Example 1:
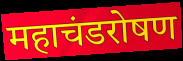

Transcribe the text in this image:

महाचंडरोषण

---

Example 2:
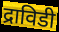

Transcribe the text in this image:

द्राविडी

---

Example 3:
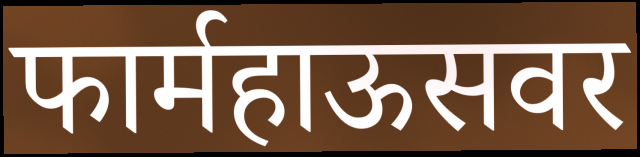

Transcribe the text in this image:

फार्महाऊसवर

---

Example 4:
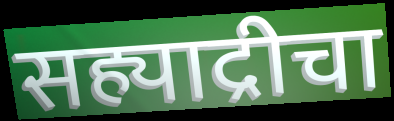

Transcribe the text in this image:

सह्याद्रीचा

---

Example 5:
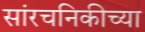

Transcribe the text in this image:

सांरचनिकीच्या